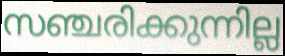
സഞ്ചരിക്കുന്നില്ല